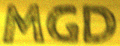
MGD